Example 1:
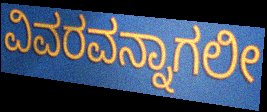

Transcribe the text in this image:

ವಿವರವನ್ನಾಗಲೀ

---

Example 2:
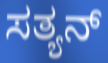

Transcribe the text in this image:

ಸತ್ಯನ್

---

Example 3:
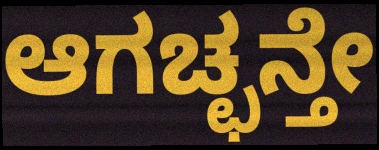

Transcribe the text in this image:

ಆಗಚ್ಛನ್ತೇ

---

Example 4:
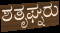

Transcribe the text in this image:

ಶತೃಘ್ನರು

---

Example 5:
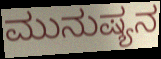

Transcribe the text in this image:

ಮುನುಷ್ಯನ